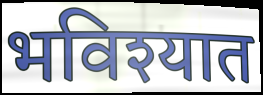
भविश्यात